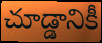
చూడ్డానికీ